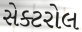
સેક્ટરોલ